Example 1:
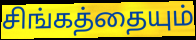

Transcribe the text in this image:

சிங்கத்தையும்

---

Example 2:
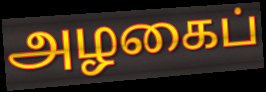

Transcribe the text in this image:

அழகைப்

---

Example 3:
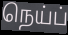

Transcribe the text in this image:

நெய்ப்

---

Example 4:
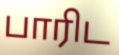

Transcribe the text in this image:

பாரிட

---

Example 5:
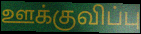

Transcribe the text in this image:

ஊக்குவிப்பு